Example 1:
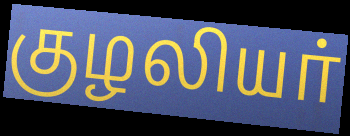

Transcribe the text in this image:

குழலியர்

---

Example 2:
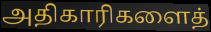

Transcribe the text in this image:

அதிகாரிகளைத்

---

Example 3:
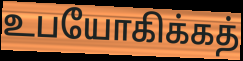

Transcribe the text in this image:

உபயோகிக்கத்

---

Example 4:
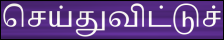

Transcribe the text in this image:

செய்துவிட்டுச்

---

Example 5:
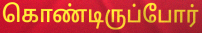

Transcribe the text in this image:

கொண்டிருப்போர்